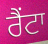
ਰੈਂਟਾ